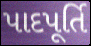
પાદપૂર્તિ